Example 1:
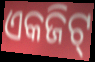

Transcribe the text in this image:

ଏକଜିଟ୍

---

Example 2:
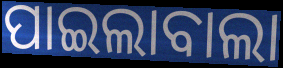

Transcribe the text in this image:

ପାଇଲାବାଲା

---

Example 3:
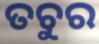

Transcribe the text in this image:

ତଚୁର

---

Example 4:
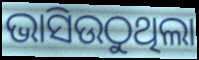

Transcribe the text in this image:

ଭାସିଉଠୁଥିଲା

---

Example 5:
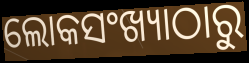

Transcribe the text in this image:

ଲୋକସଂଖ୍ୟାଠାରୁ